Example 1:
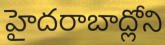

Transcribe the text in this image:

హైదరాబాద్లోని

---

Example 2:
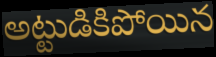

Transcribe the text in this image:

అట్టుడికిపోయిన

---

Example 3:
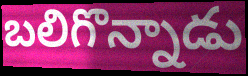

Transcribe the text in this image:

బలిగొన్నాడు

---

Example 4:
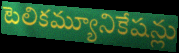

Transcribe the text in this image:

టెలికమ్యూనికేషన్లు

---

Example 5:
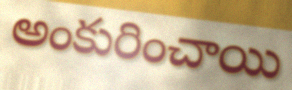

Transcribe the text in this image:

అంకురించాయి